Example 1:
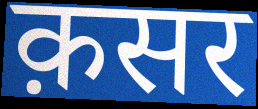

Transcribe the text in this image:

क़सर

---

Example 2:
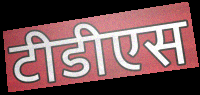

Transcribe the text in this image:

टीडीएस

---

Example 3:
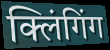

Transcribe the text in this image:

क्लिंगिंग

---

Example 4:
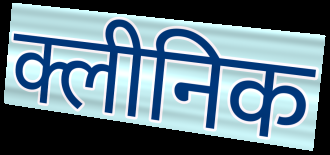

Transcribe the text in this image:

क्लीनिक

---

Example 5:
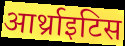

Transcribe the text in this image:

आर्थ्राइटिस